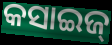
କସାଇଜ୍